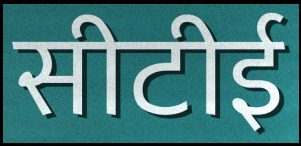
सीटीई